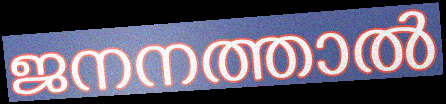
ജനനത്താൽ